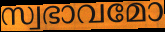
സ്വഭാവമോ